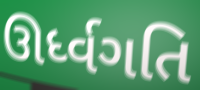
ઊર્ધ્વગતિ